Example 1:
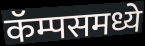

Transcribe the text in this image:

कॅम्पसमध्ये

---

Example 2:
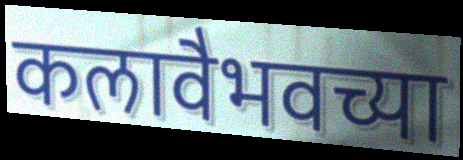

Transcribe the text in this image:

कलावैभवच्या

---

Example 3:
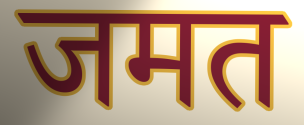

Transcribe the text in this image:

जमत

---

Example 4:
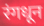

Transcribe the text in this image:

रंगधून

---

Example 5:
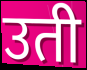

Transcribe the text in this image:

उती